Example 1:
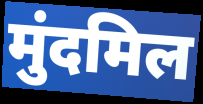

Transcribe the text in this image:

मुंदमिल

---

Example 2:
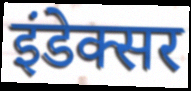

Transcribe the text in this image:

इंडेक्सर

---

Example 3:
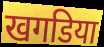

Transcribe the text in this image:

खगडिया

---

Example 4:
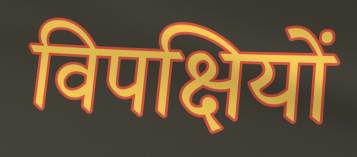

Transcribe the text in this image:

विपक्षियों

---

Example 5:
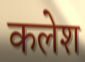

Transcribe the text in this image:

कलेश